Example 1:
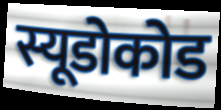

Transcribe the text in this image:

स्यूडोकोड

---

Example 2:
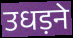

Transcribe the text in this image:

उधड़ने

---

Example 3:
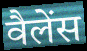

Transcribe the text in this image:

वैलेंस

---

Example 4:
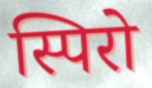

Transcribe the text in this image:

स्पिरो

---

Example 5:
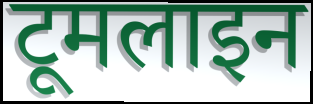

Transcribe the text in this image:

टूमलाइन